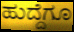
ಹುದ್ದೆಗೂ